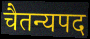
चैतन्यपद